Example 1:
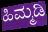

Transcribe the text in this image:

ಹಿಮ್ಮಡಿ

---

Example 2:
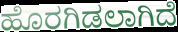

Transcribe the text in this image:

ಹೊರಗಿಡಲಾಗಿದೆ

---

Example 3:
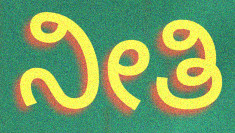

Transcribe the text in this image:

ನೀತಿ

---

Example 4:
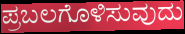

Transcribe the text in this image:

ಪ್ರಬಲಗೊಳಿಸುವುದು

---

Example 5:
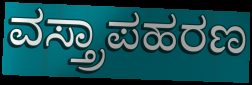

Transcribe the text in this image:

ವಸ್ತ್ರಾಪಹರಣ